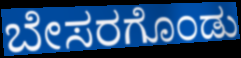
ಬೇಸರಗೊಂಡು